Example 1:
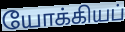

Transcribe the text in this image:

யோக்கியப்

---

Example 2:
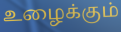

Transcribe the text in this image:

உழைக்கும்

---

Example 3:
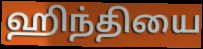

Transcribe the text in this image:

ஹிந்தியை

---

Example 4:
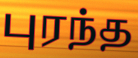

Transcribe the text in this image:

புரந்த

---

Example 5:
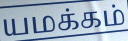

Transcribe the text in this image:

யமக்கம்